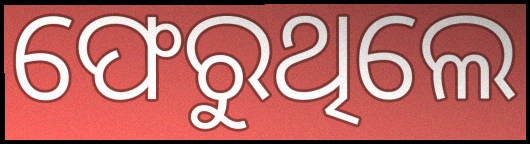
ଫେରୁଥିଲେ